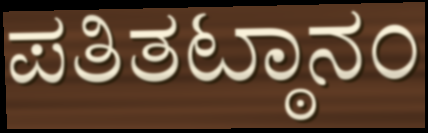
ಪತಿತಟ್ಠಾನಂ